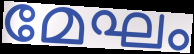
മേഘം